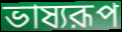
ভাষ্যরূপ